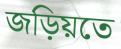
জড়িয়তে